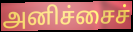
அனிச்சைச்